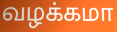
வழக்கமா